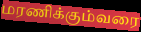
மரணிக்கும்வரை